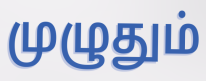
முழுதும்